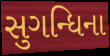
સુગન્ધિના